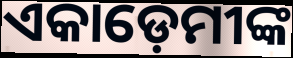
ଏକାଡ଼େମୀଙ୍କ